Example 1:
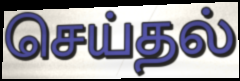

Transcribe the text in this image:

செய்தல்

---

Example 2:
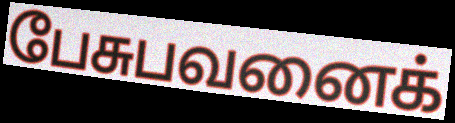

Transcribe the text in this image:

பேசுபவனைக்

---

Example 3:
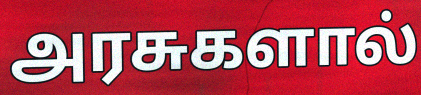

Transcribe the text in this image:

அரசுகளால்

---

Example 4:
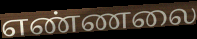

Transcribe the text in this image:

எண்ணலை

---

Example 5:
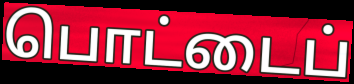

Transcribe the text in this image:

பொட்டைப்